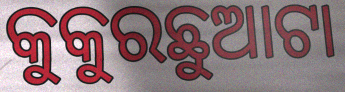
କୁକୁରଛୁଆଟା